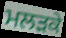
ਮਲੜਕੇ